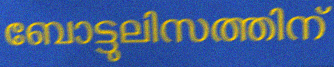
ബോട്ടുലിസത്തിന്